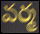
వర్మ